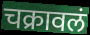
चक्रावलं